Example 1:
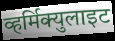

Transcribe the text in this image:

व्हर्मिक्युलाइट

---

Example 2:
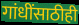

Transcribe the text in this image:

गांधींसाठीही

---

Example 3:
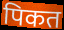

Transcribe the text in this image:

पिकत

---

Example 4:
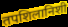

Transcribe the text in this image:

तपशिलानिशी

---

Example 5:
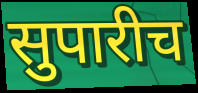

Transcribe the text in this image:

सुपारीच